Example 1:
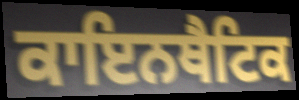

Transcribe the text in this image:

ਕਾਇਨਥੈਟਿਕ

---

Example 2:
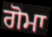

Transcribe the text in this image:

ਗੋਮਾ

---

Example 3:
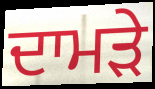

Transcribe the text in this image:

ਦਾਮੜੇ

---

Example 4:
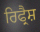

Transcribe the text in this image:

ਰਿਫ੍ਰੈਸ਼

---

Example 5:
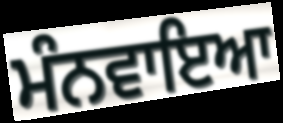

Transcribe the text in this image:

ਮੰਨਵਾਇਆ